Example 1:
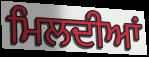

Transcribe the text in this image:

ਮਿਲਦੀਆਂ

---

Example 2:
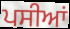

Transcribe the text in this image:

ਪਸੀਆਂ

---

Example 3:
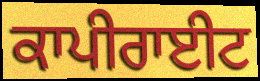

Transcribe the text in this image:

ਕਾਪੀਰਾਈਟ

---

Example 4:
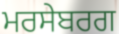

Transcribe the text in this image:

ਮਰਸੇਬਰਗ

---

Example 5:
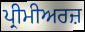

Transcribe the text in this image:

ਪ੍ਰੀਮੀਅਰਜ਼